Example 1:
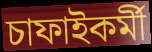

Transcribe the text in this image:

চাফাইকৰ্মী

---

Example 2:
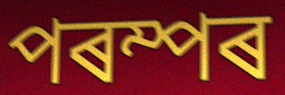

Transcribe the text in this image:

পৰম্পৰ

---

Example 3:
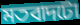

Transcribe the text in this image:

মতবাদটো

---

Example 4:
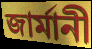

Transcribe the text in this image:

জাৰ্মানী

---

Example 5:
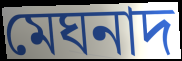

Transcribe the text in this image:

মেঘনাদ